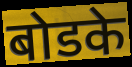
बोडके